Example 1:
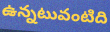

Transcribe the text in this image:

ఉన్నటువంటిది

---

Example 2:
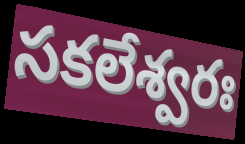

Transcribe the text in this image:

సకలేశ్వరః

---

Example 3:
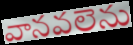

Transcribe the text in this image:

వానవలెను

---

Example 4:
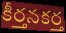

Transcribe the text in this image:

కీర్తనకర్త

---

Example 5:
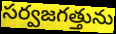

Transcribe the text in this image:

సర్వజగత్తును